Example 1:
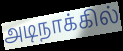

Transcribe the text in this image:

அடிநாக்கில்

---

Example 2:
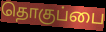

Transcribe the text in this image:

தொகுப்பை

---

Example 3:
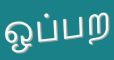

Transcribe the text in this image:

ஒப்பற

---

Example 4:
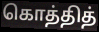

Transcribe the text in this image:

கொத்தித்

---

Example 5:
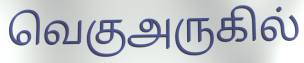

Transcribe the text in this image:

வெகுஅருகில்